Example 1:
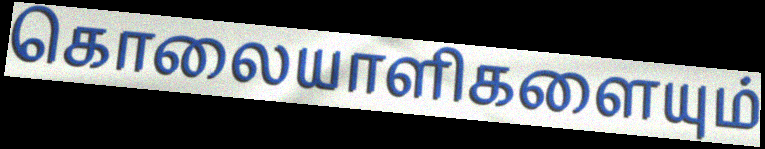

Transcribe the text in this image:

கொலையாளிகளையும்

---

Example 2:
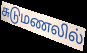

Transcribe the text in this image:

சுடுமணலில்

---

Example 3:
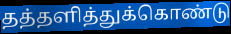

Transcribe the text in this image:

தத்தளித்துக்கொண்டு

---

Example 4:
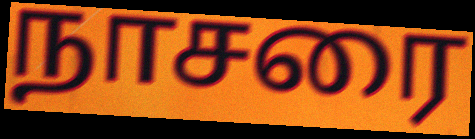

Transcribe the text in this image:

நாசரை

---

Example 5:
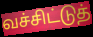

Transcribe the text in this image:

வச்சிட்டுத்